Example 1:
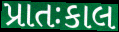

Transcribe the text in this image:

પ્રાતઃકાલ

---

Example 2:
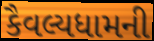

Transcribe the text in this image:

કૈવલ્યધામની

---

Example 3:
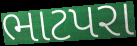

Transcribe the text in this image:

ભાટપરા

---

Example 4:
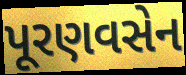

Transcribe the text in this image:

પૂરણવસેન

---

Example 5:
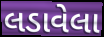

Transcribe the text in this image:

લડાવેલા